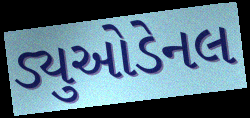
ડ્યુઓડેનલ